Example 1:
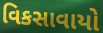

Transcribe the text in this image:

વિકસાવાયો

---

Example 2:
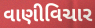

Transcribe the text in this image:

વાણીવિચાર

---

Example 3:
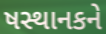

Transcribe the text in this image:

ષસ્થાનકને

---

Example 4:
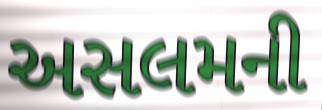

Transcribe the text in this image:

અસલમની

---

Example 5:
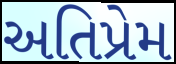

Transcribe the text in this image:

અતિપ્રેમ